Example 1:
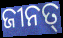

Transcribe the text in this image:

ଜୀନତ୍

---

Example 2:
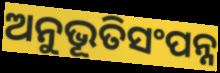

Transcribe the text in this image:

ଅନୁଭୂତିସଂପନ୍ନ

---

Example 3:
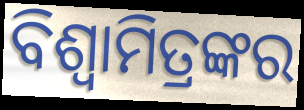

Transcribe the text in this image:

ବିଶ୍ବାମିତ୍ରଙ୍କର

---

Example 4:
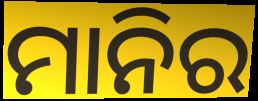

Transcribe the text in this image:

ମାନିର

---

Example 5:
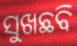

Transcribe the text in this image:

ସୁଖଛବି